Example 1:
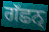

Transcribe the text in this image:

ਗੱਛਨ੍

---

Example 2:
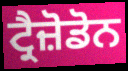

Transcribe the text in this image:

ਟ੍ਰੈਜ਼ੋਡੋਨ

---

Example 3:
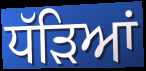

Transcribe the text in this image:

ਧੱੜਿਆਂ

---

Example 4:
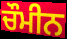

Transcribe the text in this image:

ਚੌਮੀਨ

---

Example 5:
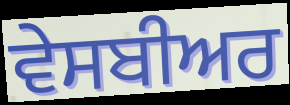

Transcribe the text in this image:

ਵੇਸਬੀਅਰ